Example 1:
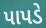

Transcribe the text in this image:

પાપડે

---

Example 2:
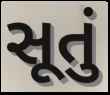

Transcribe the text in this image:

સૂતું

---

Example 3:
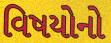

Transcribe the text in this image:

વિષયોનો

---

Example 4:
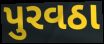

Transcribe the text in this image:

પુરવઠા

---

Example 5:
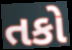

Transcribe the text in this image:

તકો